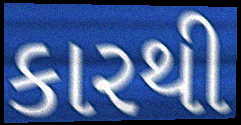
કારથી